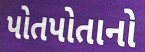
પોતપોતાનો